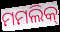
ମମଲିକ୍